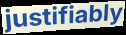
justifiably